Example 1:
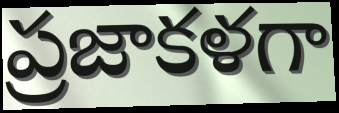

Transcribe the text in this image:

ప్రజాకళగా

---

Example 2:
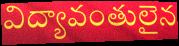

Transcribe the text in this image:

విద్యావంతులైన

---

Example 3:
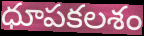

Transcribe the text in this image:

ధూపకలశం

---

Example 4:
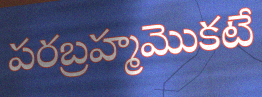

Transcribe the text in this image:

పరబ్రహ్మమొకటే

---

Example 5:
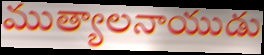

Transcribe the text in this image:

ముత్యాలనాయుడు